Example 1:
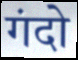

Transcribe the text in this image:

गंदो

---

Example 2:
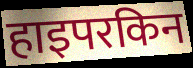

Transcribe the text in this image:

हाइपरकिन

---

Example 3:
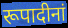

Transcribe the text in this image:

रूपादीनां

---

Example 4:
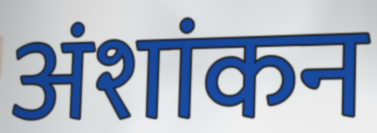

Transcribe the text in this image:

अंशांकन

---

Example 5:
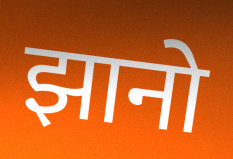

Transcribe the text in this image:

झानो